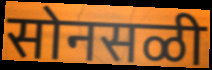
सोनसळी